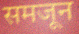
समजून